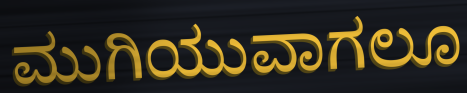
ಮುಗಿಯುವಾಗಲೂ